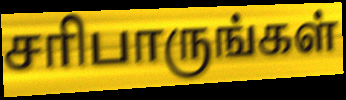
சரிபாருங்கள்